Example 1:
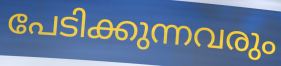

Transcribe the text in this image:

പേടിക്കുന്നവരും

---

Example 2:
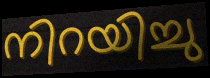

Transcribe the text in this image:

നിറയിച്ചു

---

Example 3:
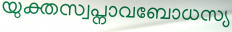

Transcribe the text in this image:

യുക്തസ്വപ്നാവബോധസ്യ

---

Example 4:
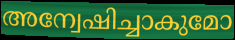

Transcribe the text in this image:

അന്വേഷിച്ചാകുമോ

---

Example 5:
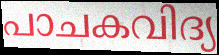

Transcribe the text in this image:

പാചകവിദ്യ